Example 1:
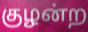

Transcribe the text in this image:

குழன்ற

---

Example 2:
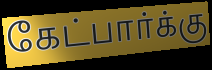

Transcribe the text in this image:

கேட்பார்க்கு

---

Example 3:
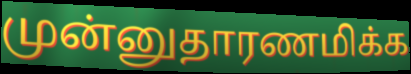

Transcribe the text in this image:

முன்னுதாரணமிக்க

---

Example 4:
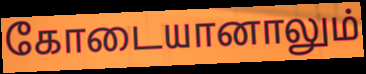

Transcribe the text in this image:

கோடையானாலும்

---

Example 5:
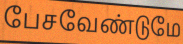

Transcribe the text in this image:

பேசவேண்டுமே